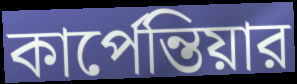
কার্পেন্তিয়ার